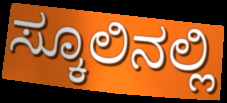
ಸ್ಕೂಲಿನಲ್ಲಿ